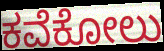
ಕವೆಕೋಲು